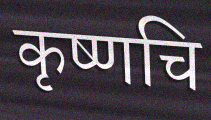
कृष्णचि